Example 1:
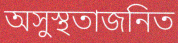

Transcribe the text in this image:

অসুস্থতাজনিত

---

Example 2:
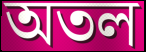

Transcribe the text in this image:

অতল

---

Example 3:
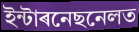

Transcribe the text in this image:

ইন্টাৰনেছনেলত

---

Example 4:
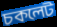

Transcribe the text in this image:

চকলেট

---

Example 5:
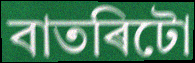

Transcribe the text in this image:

বাতৰিটো